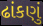
ઢાંકણું